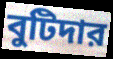
বুটিদার